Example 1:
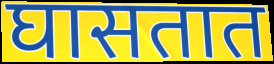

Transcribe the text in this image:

घासतात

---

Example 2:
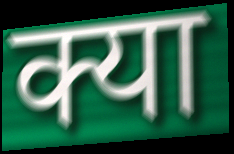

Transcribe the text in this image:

क्या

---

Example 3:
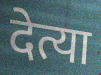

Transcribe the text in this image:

देत्या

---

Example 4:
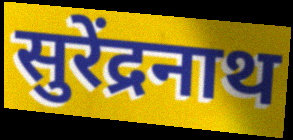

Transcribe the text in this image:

सुरेंद्रनाथ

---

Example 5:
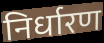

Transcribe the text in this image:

निर्धारण